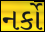
નર્કો